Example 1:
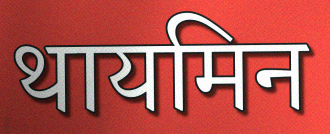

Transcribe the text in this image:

थायमिन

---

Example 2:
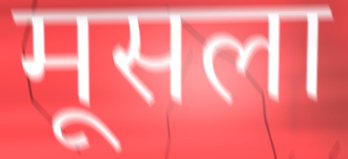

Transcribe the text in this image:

मूसला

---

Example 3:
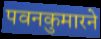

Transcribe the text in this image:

पवनकुमारने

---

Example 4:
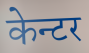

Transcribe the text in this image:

केन्टर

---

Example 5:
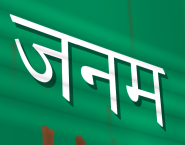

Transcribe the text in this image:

जनम